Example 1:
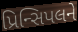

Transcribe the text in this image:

પ્રિન્સિપલને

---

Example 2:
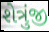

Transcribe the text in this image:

શેત્રુંજી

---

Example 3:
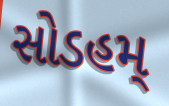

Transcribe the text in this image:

સોડહમ્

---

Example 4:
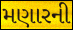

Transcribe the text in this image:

મણારની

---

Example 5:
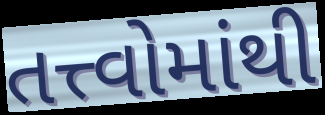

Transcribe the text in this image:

તત્ત્વોમાંથી